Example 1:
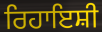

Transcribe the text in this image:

ਰਿਹਾਇਸ਼ੀ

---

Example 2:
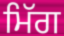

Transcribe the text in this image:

ਮਿੱਗ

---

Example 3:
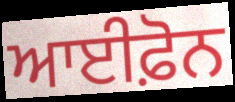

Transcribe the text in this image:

ਆਈਫ਼ੋਨ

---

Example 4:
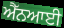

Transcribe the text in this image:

ਐੱਨਆਈ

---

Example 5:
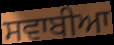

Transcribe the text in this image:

ਸਵਾਬੀਆ